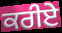
ਕਰੀਏੇ